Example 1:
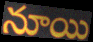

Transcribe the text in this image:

నూయి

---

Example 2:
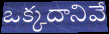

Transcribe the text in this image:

ఒక్కదానివే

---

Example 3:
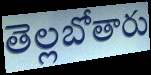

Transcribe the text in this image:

తెల్లబోతారు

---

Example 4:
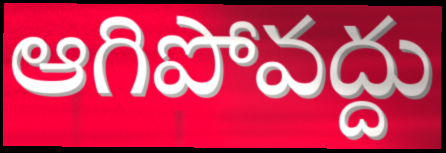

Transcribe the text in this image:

ఆగిపోవద్దు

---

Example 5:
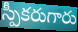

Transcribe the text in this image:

స్పీకరుగారు